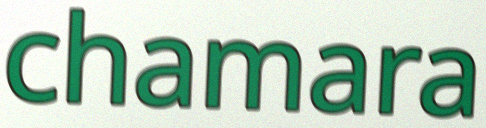
chamara